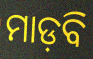
ମାଡ଼ବି